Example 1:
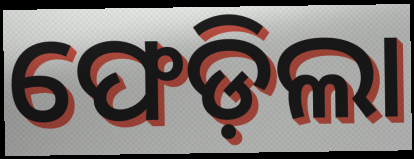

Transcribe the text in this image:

ଫେଡ଼ିଲା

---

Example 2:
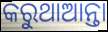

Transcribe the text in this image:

କରୁଥାଆନ୍ତା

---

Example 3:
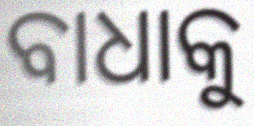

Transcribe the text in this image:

ବାଧାକୁ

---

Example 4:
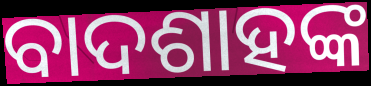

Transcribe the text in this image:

ବାଦଶାହଙ୍କ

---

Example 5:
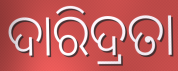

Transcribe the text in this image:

ଦାରିଦ୍ରତା